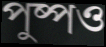
পুষ্পও